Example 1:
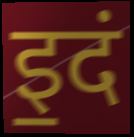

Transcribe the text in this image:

इ॒दं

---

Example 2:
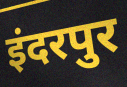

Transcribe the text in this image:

इंदरपुर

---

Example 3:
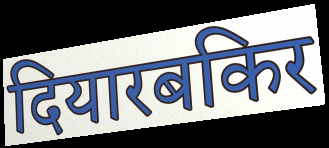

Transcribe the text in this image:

दियारबकिर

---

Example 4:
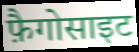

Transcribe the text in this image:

फ़ैगोसाइट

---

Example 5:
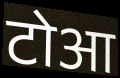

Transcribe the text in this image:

टोआ